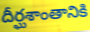
దీర్ఘశాంతానికి